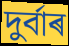
দুৰ্বাৰ